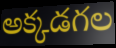
అక్కడగల